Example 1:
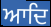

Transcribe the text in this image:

ਆਦਿ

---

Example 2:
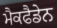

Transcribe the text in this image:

ਮੈਕਫੈਡੇਨ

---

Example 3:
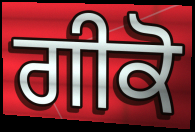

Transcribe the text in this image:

ਗੀਕੋ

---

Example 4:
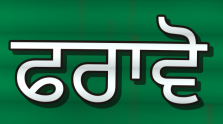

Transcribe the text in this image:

ਫਰਾਵੋ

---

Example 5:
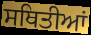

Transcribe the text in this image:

ਸਥਿਤੀਆਂ